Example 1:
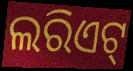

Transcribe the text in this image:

ଲରିଏଟ୍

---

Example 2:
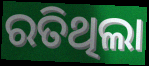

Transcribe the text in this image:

ରତିଥିଲା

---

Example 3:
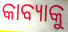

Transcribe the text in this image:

କାବ୍ୟାକୁ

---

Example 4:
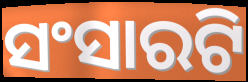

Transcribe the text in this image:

ସଂସାରଟି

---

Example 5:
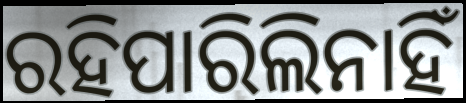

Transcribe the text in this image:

ରହିପାରିଲିନାହିଁ